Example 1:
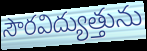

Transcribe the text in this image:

సౌరవిద్యుత్తును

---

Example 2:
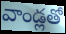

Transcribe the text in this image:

వాండ్లతో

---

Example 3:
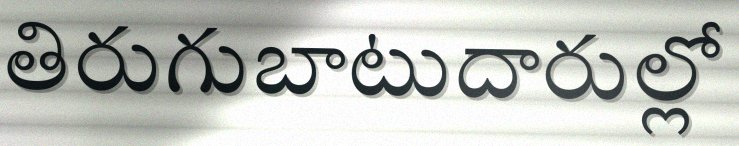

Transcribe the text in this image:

తిరుగుబాటుదారుల్లో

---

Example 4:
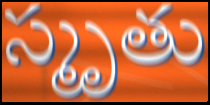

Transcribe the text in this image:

స్మృతు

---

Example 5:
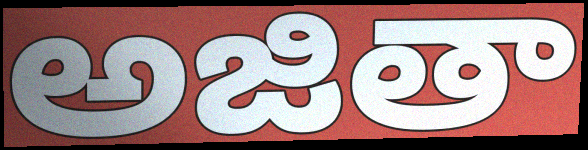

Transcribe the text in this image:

అజితా